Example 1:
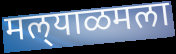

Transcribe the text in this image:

मल्याळमला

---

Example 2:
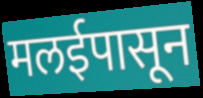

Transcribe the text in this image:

मलईपासून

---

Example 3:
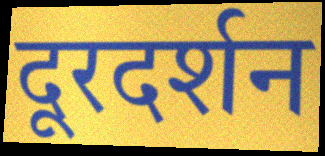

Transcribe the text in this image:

दूरदर्शन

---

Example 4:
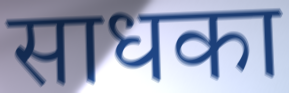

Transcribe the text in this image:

साधका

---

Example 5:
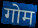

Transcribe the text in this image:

गोम